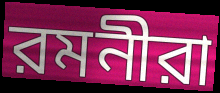
রমনীরা